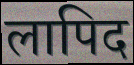
लापिद